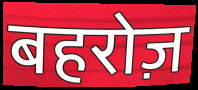
बहरोज़